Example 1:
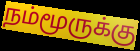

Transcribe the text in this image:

நம்மூருக்கு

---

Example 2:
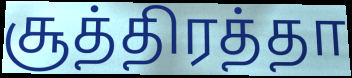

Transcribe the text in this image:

சூத்திரத்தா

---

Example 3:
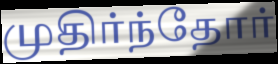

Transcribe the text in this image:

முதிர்ந்தோர்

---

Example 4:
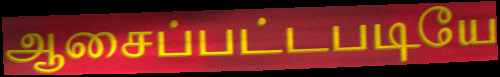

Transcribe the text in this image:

ஆசைப்பட்டபடியே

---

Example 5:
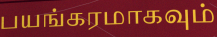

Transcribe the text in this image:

பயங்கரமாகவும்